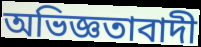
অভিজ্ঞতাবাদী